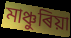
মাঞ্চুৰিয়া